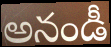
అనండీ